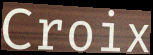
Croix